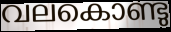
വലകൊണ്ടു